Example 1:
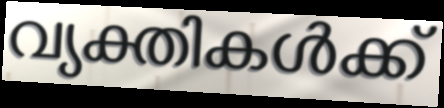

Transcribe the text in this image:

വ്യക്തികൾക്ക്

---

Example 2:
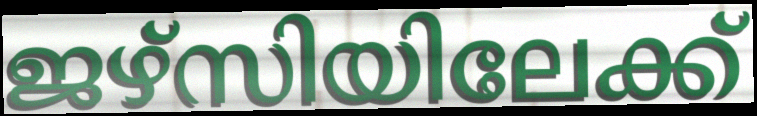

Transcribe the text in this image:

ജഴ്സിയിലേക്ക്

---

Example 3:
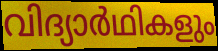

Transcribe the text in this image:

വിദ്യാർഥികളും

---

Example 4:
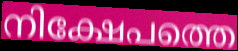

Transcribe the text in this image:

നിക്ഷേപത്തെ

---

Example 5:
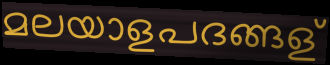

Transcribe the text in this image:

മലയാളപദങ്ങള്